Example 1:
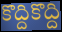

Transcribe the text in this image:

కొద్దికొద్ది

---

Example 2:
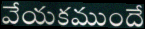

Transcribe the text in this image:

వేయకముందే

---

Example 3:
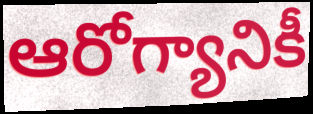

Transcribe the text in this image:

ఆరోగ్యానికీ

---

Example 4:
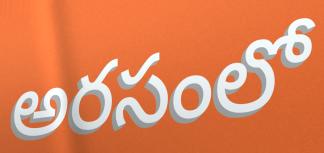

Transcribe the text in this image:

అరసంలో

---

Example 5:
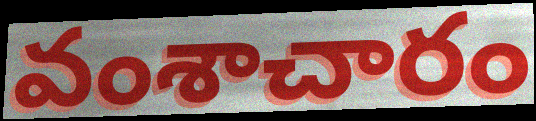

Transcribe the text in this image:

వంశాచారం